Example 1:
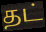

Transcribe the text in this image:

தட்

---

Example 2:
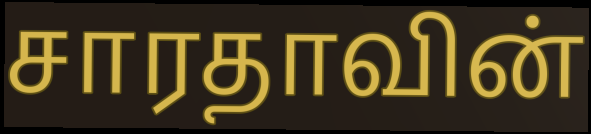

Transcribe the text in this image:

சாரதாவின்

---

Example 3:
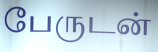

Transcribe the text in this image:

பேருடன்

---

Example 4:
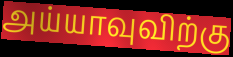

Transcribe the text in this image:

அய்யாவுவிற்கு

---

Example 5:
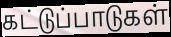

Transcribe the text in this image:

கட்டுப்பாடுகள்